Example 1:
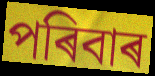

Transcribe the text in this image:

পৰিবাৰ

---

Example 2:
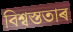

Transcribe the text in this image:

বিশ্বস্ততাৰ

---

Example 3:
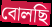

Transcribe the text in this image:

বোলছি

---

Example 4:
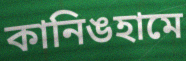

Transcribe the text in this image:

কানিঙহামে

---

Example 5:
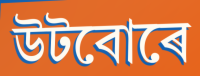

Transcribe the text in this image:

উটবোৰে